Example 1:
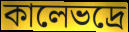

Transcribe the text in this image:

কালেভদ্রে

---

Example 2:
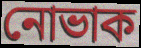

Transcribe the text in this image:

নোভাক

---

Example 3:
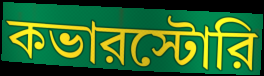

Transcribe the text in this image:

কভারস্টোরি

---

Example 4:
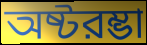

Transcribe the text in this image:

অষ্টরম্ভা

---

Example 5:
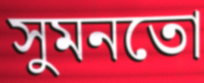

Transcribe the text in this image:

সুমনতো